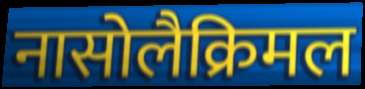
नासोलैक्रिमल